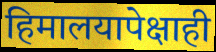
हिमालयापेक्षाही